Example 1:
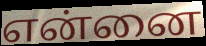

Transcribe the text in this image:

என்னை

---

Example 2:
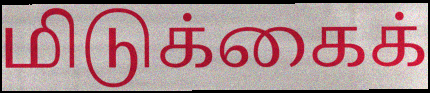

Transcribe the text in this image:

மிடுக்கைக்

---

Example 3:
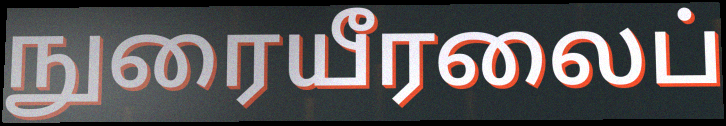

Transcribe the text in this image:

நுரையீரலைப்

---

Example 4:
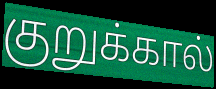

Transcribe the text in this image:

குறுக்கால்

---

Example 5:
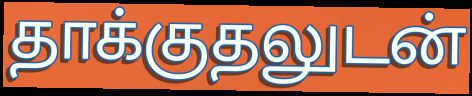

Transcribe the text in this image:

தாக்குதலுடன்